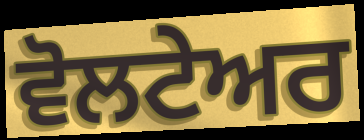
ਵੋਲਟੇਅਰ